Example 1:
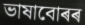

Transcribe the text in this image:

ভাষাবোৰৰ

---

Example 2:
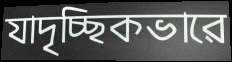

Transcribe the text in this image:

যাদৃচ্ছিকভাৱে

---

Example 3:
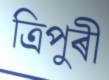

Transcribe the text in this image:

ত্ৰিপুৰী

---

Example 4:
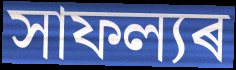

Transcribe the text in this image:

সাফল্যৰ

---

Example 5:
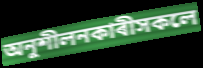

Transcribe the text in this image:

অনুশীলনকাৰীসকলে